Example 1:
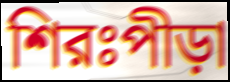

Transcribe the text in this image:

শিরঃপীড়া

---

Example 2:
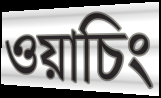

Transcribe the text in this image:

ওয়াচিং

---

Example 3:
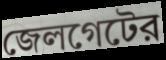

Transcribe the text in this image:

জেলগেটের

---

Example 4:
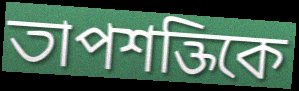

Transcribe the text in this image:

তাপশক্তিকে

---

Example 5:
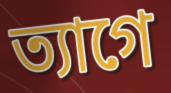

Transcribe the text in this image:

ত্যাগে